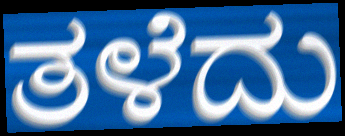
ತಳೆದು